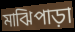
মাঝিপাড়া